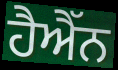
ਹੈਐੱਨ